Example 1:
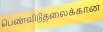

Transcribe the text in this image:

பெண்விடுதலைக்கான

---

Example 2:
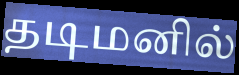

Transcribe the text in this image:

தடிமனில்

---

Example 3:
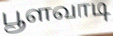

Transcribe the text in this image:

பூளவாடி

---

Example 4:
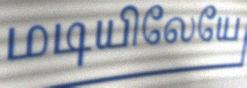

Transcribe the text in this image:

மடியிலேயே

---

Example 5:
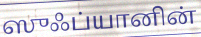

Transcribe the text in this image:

ஸுஃப்யானின்